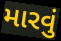
મારવું